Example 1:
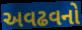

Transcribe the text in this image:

અવઢવનો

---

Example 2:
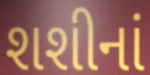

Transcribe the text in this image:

શશીનાં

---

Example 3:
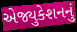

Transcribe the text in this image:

એજ્યુકેશનનું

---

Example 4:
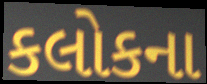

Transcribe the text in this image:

કલોકના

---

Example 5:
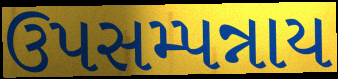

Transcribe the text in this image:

ઉપસમ્પન્નાય